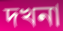
দখনা